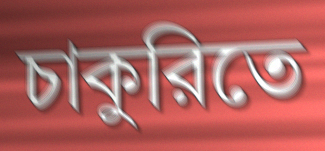
চাকুরিতে